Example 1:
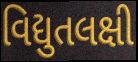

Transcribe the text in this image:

વિદ્યુતલક્ષી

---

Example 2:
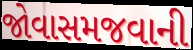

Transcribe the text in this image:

જોવાસમજવાની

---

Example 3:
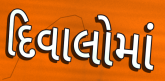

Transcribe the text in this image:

દિવાલોમાં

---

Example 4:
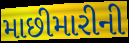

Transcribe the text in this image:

માછીમારીની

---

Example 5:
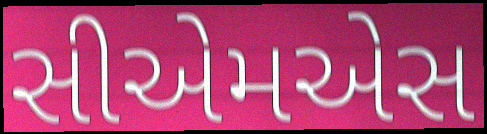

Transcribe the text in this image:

સીએમએસ